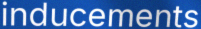
inducements